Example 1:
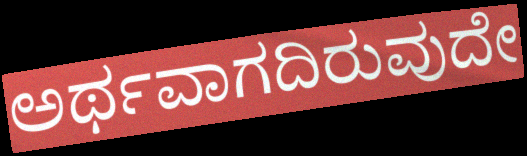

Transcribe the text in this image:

ಅರ್ಥವಾಗದಿರುವುದೇ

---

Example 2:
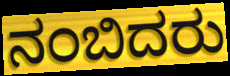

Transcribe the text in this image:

ನಂಬಿದರು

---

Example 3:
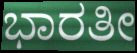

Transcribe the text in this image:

ಭಾರತೀ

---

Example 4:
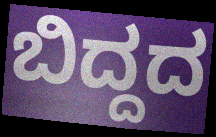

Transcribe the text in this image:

ಬಿದ್ದದ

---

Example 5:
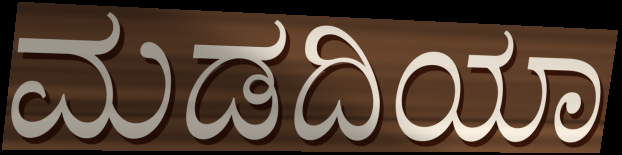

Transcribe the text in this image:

ಮಡದಿಯಾ